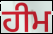
ਹੀਮ